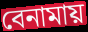
বেনামায়